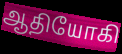
ஆதியோகி